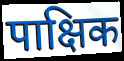
पाक्षिक